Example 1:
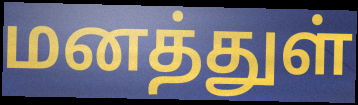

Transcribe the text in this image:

மனத்துள்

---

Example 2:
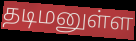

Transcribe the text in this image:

தடிமனுள்ள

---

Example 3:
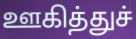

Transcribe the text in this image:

ஊகித்துச்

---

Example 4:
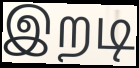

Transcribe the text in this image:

இறடி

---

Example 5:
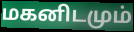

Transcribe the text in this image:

மகனிடமும்